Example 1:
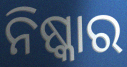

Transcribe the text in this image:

ନିଷ୍କାର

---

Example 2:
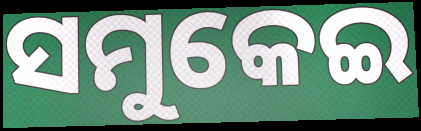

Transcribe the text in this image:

ସମୁକେଇ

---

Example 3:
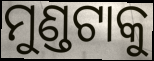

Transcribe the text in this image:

ମୁଣ୍ଡଟାକୁ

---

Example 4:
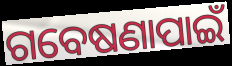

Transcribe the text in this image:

ଗବେଷଣାପାଇଁ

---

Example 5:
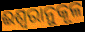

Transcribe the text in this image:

ଈଶ୍ଵରାନୁକୂଳ